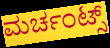
ಮರ್ಚಂಟ್ಸ್